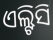
ଏଲ୍ଟିସି